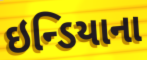
ઇન્ડિયાના